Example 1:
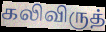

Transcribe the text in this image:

கலிவிருத்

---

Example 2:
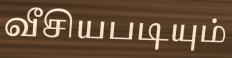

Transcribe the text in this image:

வீசியபடியும்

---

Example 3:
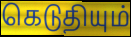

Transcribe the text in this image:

கெடுதியும்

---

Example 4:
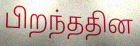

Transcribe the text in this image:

பிறந்ததின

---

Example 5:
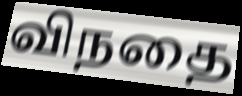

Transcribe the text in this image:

விநதை